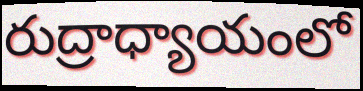
రుద్రాధ్యాయంలో